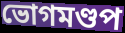
ভোগমণ্ডপ